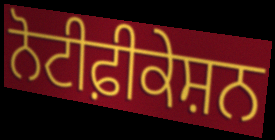
ਨੋਟੀਫ਼ੀਕੇਸ਼ਨ